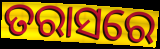
ତରାସରେ